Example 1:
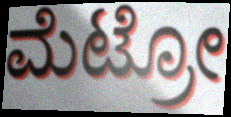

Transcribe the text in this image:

ಮೆಟ್ರೋ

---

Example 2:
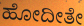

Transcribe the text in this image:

ಹೋದೀತೇ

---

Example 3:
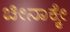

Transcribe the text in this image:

ಚೀನಾಕ್ಕೇ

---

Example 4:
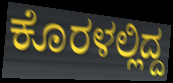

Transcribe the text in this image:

ಕೊರಳಲ್ಲಿದ್ದ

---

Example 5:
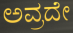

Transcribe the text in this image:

ಅವ್ರದೇ